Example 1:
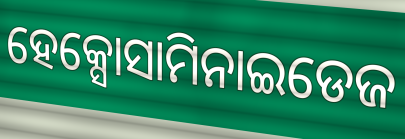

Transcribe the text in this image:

ହେକ୍ସୋସାମିନାଇଡେଜ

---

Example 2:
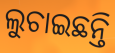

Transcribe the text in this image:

ଲୁଚାଇଛନ୍ତି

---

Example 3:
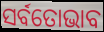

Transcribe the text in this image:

ସର୍ବତୋଭାବ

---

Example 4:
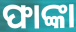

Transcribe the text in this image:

ଫାଙ୍କା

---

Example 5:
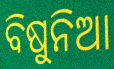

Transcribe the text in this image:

ବିଷୁନିଆ